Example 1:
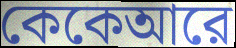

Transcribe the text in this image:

কেকেআরে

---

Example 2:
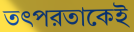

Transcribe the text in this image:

তৎপরতাকেই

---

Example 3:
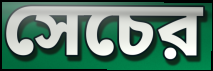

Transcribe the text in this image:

সেচের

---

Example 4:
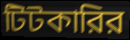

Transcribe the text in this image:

টিটকারির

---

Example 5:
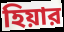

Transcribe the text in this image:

হিয়ার